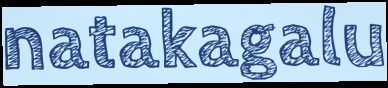
natakagalu